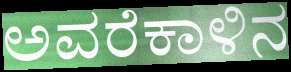
ಅವರೆಕಾಳಿನ